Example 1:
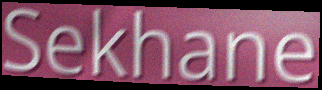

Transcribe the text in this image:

Sekhane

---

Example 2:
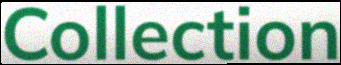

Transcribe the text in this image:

Collection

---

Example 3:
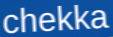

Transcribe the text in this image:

chekka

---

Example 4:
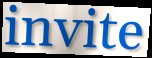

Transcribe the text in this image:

invite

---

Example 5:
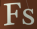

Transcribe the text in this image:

Fs